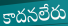
కాదనలేరు